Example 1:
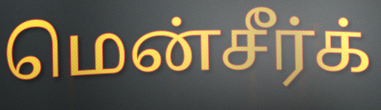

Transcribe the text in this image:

மென்சீர்க்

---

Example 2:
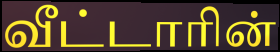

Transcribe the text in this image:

வீட்டாரின்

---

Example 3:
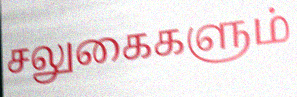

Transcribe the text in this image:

சலுகைகளும்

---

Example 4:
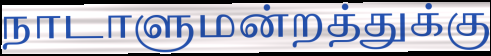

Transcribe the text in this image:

நாடாளுமன்றத்துக்கு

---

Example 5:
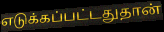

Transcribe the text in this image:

எடுக்கப்பட்டதுதான்